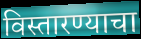
विस्तारण्याचा